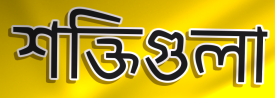
শক্তিগুলা